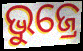
ଭୁଜ୍ରେ